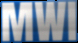
MWI